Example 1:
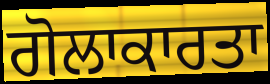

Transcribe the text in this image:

ਗੋਲਾਕਾਰਤਾ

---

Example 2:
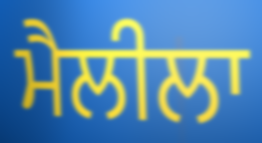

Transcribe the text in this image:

ਮੈਲੀਲਾ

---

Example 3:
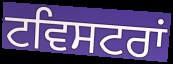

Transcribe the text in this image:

ਟਵਿਸਟਰਾਂ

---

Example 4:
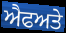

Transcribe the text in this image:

ਐਫਅਤੇ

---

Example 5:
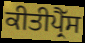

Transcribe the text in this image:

ਕੀਤੀਪ੍ਰੈੱਸ